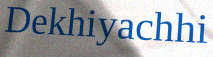
Dekhiyachhi